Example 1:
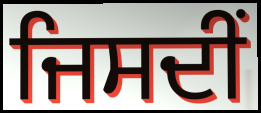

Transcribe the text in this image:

ਜਿਸਦੀਂ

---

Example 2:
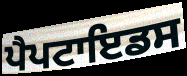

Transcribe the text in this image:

ਪੈਪਟਾਇਡਸ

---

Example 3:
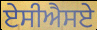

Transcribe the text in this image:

ਏਸੀਐਸਏ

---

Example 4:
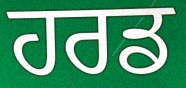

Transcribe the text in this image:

ਹਰਡ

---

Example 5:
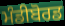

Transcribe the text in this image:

ਮੰਡੀਬੋਰਡ